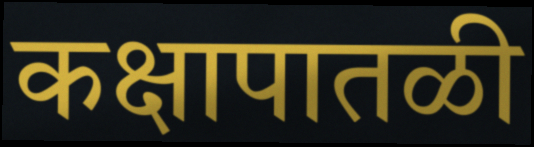
कक्षापातळी